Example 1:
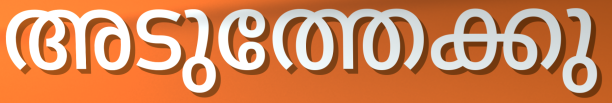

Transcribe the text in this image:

അടുത്തേക്കു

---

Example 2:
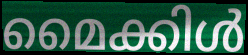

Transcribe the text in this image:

മൈക്കിൾ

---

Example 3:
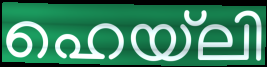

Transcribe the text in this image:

ഹെയ്‌ലി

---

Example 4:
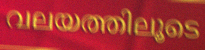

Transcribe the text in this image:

വലയത്തിലൂടെ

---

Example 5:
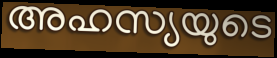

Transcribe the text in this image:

അഹസ്യയുടെ